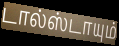
டால்ஸ்டாயும்